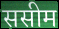
ससीम